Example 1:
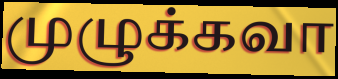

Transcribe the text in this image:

முழுக்கவா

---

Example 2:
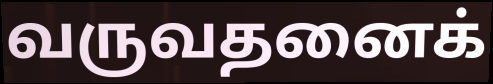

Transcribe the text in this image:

வருவதனைக்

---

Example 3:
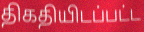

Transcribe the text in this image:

திகதியிடப்பட்ட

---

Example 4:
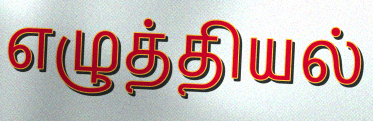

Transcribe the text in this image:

எழுத்தியல்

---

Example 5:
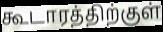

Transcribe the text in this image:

கூடாரத்திற்குள்